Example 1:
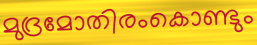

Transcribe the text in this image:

മുദ്രമോതിരംകൊണ്ടും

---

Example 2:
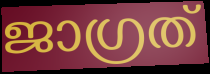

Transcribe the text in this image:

ജാഗ്രത്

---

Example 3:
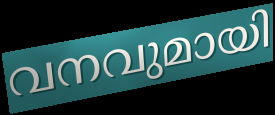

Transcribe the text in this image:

വനവുമായി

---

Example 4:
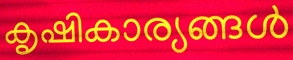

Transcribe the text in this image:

കൃഷികാര്യങ്ങൾ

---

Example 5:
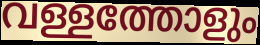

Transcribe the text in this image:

വള്ളത്തോളും